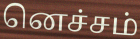
னெச்சம்